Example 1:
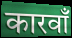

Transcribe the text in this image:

कारवाँ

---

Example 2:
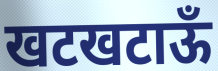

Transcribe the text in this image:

खटखटाऊँ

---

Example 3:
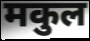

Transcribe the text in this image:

मकुल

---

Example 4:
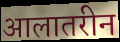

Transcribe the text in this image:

आलातरीन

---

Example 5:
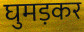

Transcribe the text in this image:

घुमड़कर